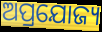
ଅପ୍ରଯୋଜ୍ୟ